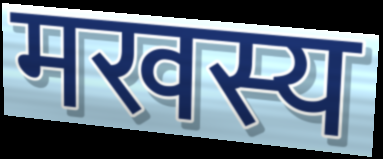
मखस्य